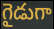
గైడుగా